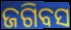
ଜଗିବସ